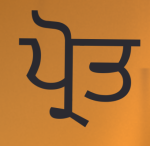
ਪ੍ਰੋਤ